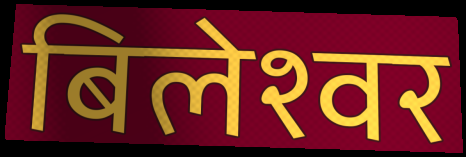
बिलेश्वर